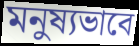
মনুষ্যভাবে